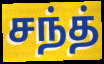
சந்த்